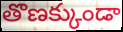
తొణక్కుండా